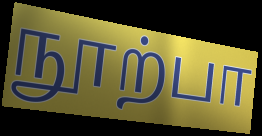
நூற்பா